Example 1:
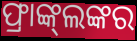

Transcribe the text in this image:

ଫ୍ରାଙ୍କ୍‌ଲଙ୍କର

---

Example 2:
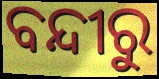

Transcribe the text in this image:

ବନ୍ଦୀରୁ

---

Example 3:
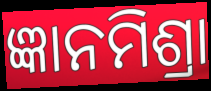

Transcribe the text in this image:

ଜ୍ଞାନମିଶ୍ରା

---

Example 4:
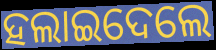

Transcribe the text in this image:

ହଲାଇଦେଲେ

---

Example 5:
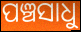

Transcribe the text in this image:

ପଞ୍ଚସାଧୁ